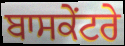
ਬਾਸਕੇਂਟਰੇ